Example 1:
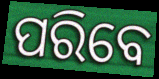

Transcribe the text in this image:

ପରିବେ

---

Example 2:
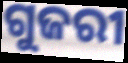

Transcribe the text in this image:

ଗୁଜରୀ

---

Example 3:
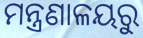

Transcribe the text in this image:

ମନ୍ତ୍ରଣାଳୟରୁ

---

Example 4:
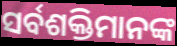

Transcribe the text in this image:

ସର୍ବଶକ୍ତିମାନଙ୍କ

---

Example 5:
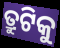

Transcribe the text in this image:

ତ୍ରୁଟିକୁ